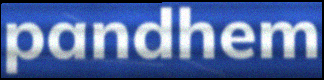
pandhem